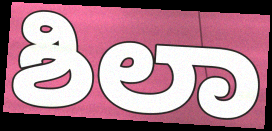
ಶಿಲಾ